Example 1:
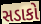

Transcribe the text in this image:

સડાકો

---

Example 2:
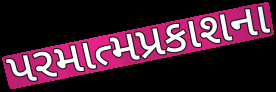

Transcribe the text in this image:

પરમાત્મપ્રકાશના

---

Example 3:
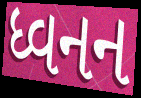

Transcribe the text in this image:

ધ્વનન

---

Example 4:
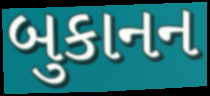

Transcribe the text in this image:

બુકાનન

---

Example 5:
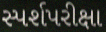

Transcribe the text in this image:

સ્પર્શપરીક્ષા